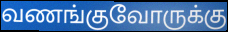
வணங்குவோருக்கு